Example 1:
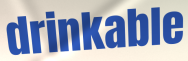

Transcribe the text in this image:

drinkable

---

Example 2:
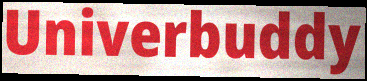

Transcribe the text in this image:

Univerbuddy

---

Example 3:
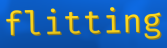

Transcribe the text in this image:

flitting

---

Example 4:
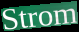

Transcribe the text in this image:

Strom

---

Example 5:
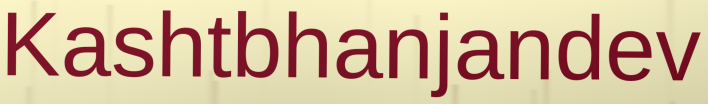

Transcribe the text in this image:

Kashtbhanjandev